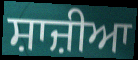
ਸ਼ਾਜ਼ੀਆ